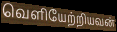
வெளியேற்றியவன்